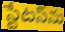
స్టేటస్‌ను